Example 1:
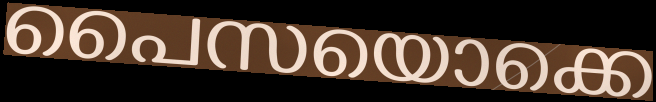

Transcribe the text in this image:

പൈസയൊക്കെ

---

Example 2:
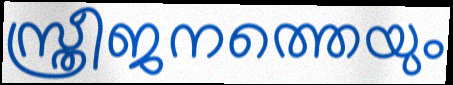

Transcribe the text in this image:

സ്ത്രീജനത്തെയും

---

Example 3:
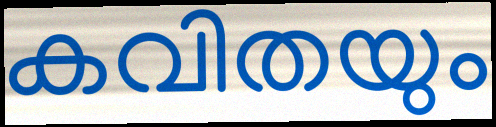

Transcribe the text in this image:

കവിതയും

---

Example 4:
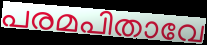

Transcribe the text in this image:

പരമപിതാവേ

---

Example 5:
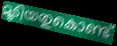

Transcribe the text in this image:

മൂടിയതുകൊണ്ട്